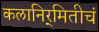
कलानिर्मितीचं